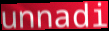
unnadi